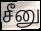
சீனு